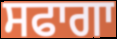
ਸਫਾਗਾ